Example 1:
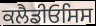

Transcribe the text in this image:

ਕਲੈਡੀਓਸਿਸ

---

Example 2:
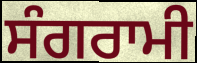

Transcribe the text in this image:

ਸੰਗਰਾਮੀ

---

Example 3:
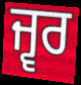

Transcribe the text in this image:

ਜ੍ਵਰ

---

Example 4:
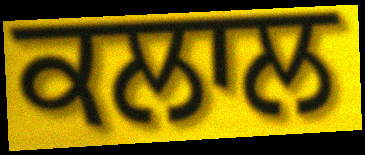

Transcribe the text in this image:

ਕਲਾਲ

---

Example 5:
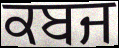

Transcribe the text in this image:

ਕਬਜ